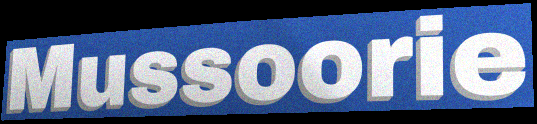
Mussoorie